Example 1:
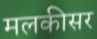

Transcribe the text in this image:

मलकीसर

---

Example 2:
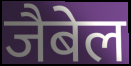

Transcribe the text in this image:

जैबेल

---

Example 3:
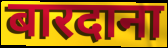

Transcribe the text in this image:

बारदाना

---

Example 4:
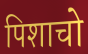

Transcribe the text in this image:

पिशाचो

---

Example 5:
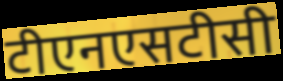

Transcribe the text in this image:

टीएनएसटीसी